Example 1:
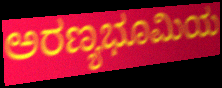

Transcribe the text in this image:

ಅರಣ್ಯಭೂಮಿಯ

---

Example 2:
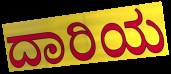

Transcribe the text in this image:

ದಾರಿಯ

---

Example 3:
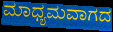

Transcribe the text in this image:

ಮಾಧ್ಯಮವಾಗದ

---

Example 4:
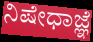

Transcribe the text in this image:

ನಿಷೇಧಾಜ್ಞೆ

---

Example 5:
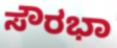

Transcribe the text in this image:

ಸೌರಭಾ